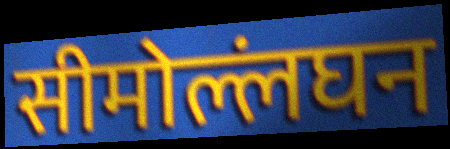
सीमोल्लंघन